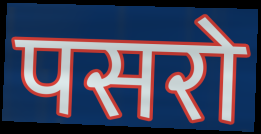
पसरो